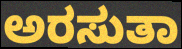
ಅರಸುತಾ